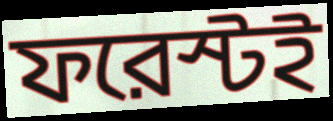
ফরেস্টই